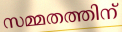
സമ്മതത്തിന്